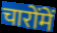
चारोंमें